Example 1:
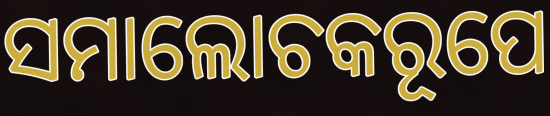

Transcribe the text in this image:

ସମାଲୋଚକରୂପେ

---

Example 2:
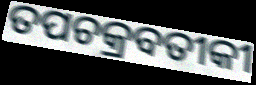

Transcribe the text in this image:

ତପଚକ୍ରବତୀକୀ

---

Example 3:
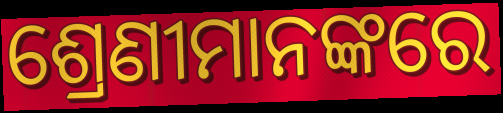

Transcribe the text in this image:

ଶ୍ରେଣୀମାନଙ୍କରେ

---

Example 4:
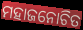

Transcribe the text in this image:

ମହାଜନୋଚିତ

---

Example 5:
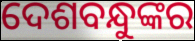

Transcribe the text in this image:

ଦେଶବନ୍ଧୁଙ୍କର